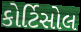
કોર્ટિસોલ